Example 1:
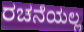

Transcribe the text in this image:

ರಚನೆಯಲ್ಲ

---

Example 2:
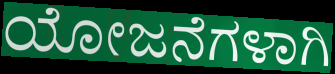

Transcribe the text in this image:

ಯೋಜನೆಗಳಾಗಿ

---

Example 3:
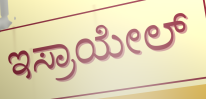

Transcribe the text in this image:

ಇಸ್ರಾಯೇಲ್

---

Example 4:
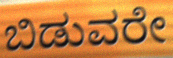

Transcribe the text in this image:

ಬಿಡುವರೇ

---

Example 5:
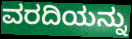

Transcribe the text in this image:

ವರದಿಯನ್ನು